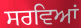
ਸਰਵਿਆਂ